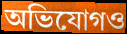
অভিযোগও